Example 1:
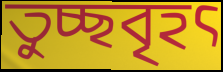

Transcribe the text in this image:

তুচ্ছবৃহৎ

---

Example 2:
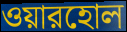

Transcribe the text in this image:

ওয়ারহোল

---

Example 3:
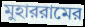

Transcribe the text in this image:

মুহাররামের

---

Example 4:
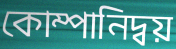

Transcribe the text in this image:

কোম্পানিদ্বয়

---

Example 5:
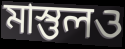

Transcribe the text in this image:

মাস্তুলও